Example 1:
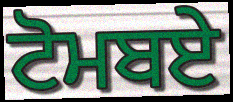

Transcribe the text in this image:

ਟੋਮਬਏ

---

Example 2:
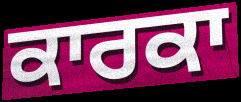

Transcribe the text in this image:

ਕਾਰਕਾ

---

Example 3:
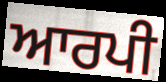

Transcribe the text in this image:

ਆਰਪੀ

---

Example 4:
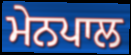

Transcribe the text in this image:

ਮੇਨਪਾਲ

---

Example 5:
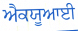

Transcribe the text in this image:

ਐਕਯੂਆਈ